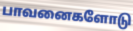
பாவனைகளோடு